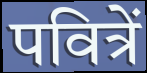
पवित्रें